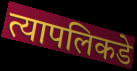
त्यापलिकडे